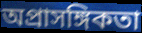
অপ্রাসঙ্গিকতা